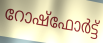
റോഷ്ഫോർട്ട്